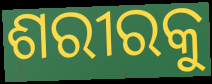
ଶରୀରକୁ